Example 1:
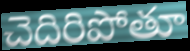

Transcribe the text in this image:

చెదిరిపోతూ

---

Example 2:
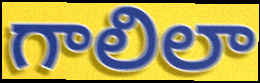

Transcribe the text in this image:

గాలిలా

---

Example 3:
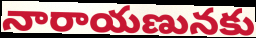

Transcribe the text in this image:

నారాయణునకు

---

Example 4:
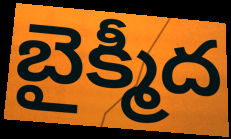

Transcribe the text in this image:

బైక్మీద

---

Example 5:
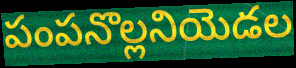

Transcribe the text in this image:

పంపనొల్లనియెడల